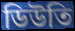
ডিউতি